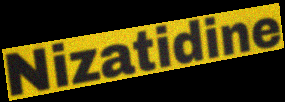
Nizatidine